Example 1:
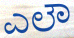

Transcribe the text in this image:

ಎಲೌ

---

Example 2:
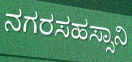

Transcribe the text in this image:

ನಗರಸಹಸ್ಸಾನಿ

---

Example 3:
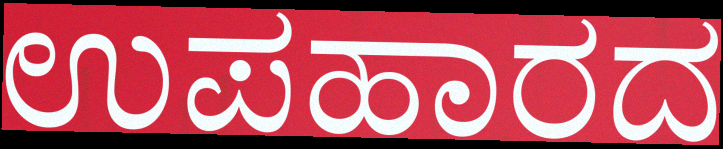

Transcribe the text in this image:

ಉಪಹಾರದ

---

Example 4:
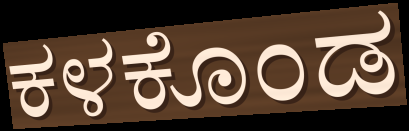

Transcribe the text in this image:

ಕಳಕೊಂಡ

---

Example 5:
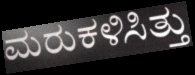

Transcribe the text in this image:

ಮರುಕಳಿಸಿತ್ತು